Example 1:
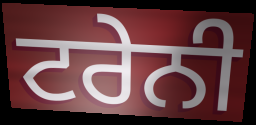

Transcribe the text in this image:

ਟਰੇਨੀ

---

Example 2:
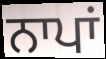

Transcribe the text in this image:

ਨਾਪਾਂ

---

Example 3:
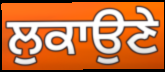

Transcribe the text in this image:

ਲੁਕਾਉਣੇ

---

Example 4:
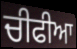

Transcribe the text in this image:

ਚੀਫੀਆ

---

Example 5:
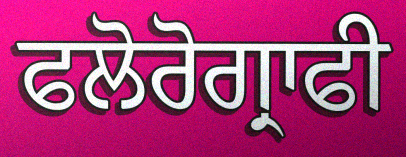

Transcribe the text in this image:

ਫਲੋਰੋਗ੍ਰਾਫੀ